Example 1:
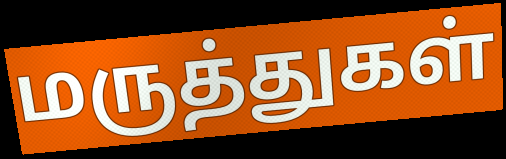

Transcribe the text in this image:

மருத்துகள்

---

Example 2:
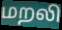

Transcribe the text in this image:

மறலி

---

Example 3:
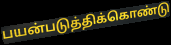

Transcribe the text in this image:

பயன்படுத்திக்கொண்டு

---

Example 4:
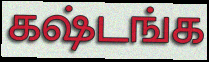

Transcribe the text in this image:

கஷ்டங்க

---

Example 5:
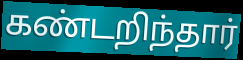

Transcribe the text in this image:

கண்டறிந்தார்